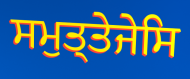
ਸਮੁਤ੍ਤੇਜੇਸਿ